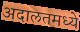
अदालतमध्ये